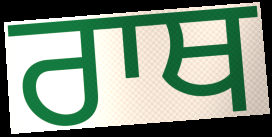
ਰਾਥ